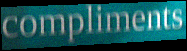
compliments